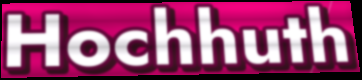
Hochhuth